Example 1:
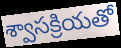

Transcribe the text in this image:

శ్వాసక్రియతో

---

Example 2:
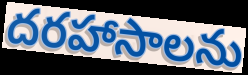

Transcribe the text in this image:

దరహాసాలను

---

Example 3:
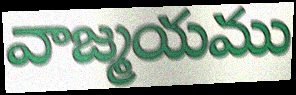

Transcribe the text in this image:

వాజ్మయము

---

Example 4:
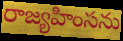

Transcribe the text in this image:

రాజ్యహింసను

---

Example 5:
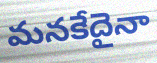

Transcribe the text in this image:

మనకేదైనా